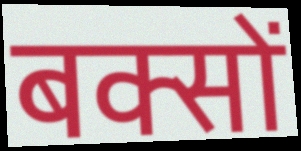
बक्सों